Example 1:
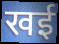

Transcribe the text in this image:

खई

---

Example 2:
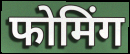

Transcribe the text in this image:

फोमिंग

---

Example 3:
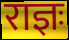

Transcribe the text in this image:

राज्ञः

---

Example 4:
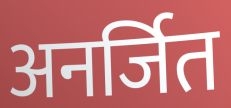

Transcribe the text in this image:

अनर्जित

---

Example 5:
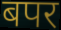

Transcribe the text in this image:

बपर